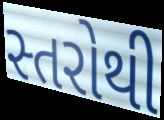
સ્તરોથી